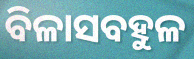
ବିଳାସବହୁଳ